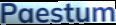
Paestum